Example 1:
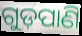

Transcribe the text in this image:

ଗୁଡ଼ପାଣି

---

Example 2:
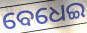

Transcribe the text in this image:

ବେଧେଇ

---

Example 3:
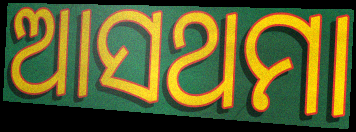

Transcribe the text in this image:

ଆସଥମା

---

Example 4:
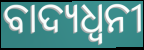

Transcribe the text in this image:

ବାଦ୍ୟଧ୍ୱନୀ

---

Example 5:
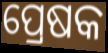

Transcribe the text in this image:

ପ୍ରେଷକ